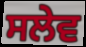
ਸਲੇਵ